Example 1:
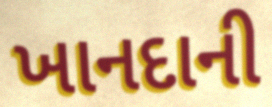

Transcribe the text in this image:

ખાનદાની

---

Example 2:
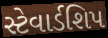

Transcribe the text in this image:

સ્ટેવાર્ડશિપ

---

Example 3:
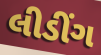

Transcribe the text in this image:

લીડીંગ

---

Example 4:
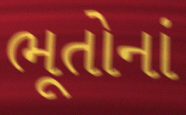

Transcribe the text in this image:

ભૂતોનાં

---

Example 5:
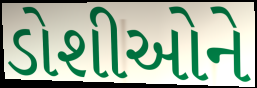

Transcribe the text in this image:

ડોશીઓને